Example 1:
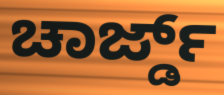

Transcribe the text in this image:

ಚಾರ್ಜ್ಡ್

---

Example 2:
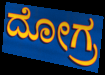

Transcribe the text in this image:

ದೋಗ್ರ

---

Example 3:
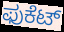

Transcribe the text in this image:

ಫುಕೆಟ್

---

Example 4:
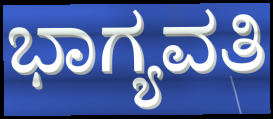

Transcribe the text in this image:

ಭಾಗ್ಯವತಿ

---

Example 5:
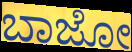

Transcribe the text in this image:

ಬಾಜೋ